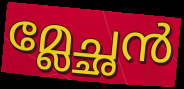
മ്ലേച്ഛൻ